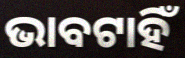
ଭାବଟାହିଁ